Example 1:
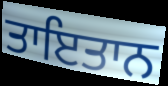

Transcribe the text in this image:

ਤਾਇਤਾਨ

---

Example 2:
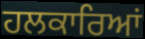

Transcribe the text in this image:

ਹਲਕਾਰਿਆਂ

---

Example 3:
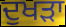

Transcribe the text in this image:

ਦੁਖੜਾ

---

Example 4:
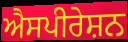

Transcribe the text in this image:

ਐਸਪੀਰੇਸ਼ਨ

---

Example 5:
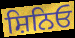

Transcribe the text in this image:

ਸ਼ਿਨਿਓ